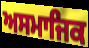
ਅਸਮਾਜਿਕ